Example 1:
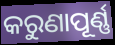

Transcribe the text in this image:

କରୁଣାପୂର୍ଣ୍ଣ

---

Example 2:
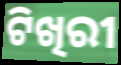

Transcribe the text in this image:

ଟିଖିରୀ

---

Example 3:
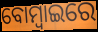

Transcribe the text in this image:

ବୋମ୍ୱାଇରେ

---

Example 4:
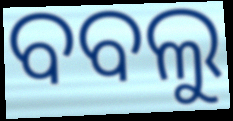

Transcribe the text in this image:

ବବଲୁ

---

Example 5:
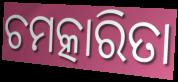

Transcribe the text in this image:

ଚମତ୍କାରିତା